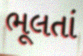
ભૂલતાં